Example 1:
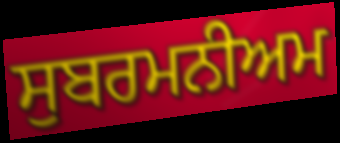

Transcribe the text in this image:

ਸੁਬਰਮਨੀਅਮ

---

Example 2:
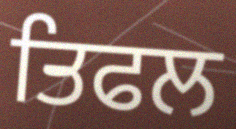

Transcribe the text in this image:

ਤਿਫਲ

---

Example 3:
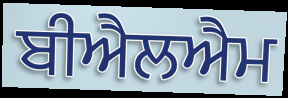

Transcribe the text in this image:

ਬੀਐਲਐਮ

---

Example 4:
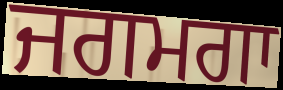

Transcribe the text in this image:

ਜਗਮਗਾ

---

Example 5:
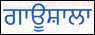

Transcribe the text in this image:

ਗਾਊਸ਼ਾਲਾ